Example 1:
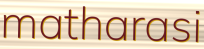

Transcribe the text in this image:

matharasi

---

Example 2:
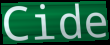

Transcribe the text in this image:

Cide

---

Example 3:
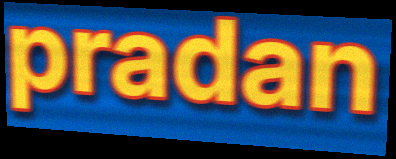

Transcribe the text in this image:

pradan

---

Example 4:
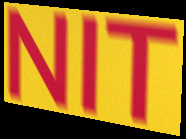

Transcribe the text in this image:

NIT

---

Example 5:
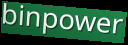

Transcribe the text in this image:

binpower